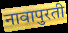
नावापुरती